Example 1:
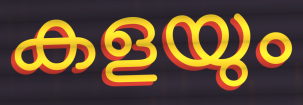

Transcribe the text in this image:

കളയും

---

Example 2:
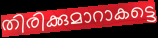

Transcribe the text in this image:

തിരിക്കുമാറാകട്ടെ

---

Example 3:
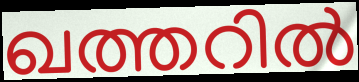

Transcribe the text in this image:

ഖത്തറിൽ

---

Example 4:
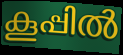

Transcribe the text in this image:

കൂപ്പിൽ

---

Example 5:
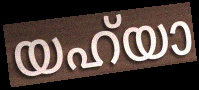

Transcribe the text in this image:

യഹ്‌യാ